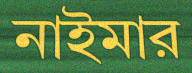
নাইমার